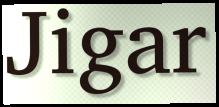
Jigar